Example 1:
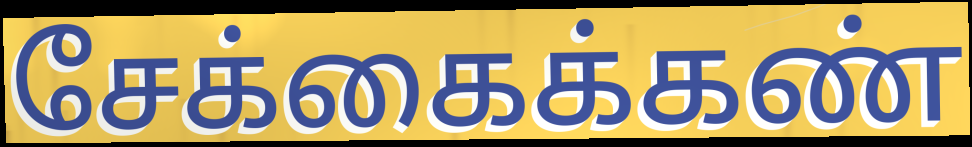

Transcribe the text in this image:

சேக்கைக்கண்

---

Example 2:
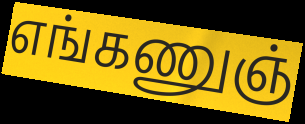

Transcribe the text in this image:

எங்கணுஞ்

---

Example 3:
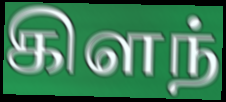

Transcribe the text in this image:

கிளந்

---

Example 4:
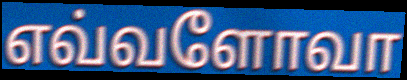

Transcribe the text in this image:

எவ்வளோவா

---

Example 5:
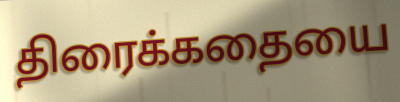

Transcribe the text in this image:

திரைக்கதையை